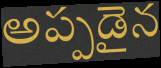
అప్పడైన